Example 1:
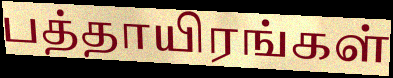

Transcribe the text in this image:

பத்தாயிரங்கள்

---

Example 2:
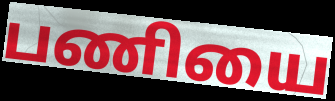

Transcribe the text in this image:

பணியை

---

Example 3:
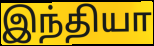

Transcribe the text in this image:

இந்தியா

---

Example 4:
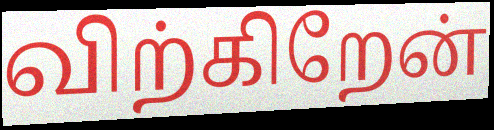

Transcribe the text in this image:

விற்கிறேன்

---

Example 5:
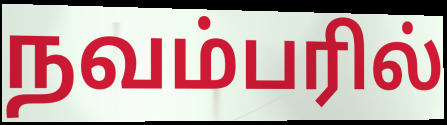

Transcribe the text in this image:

நவம்பரில்